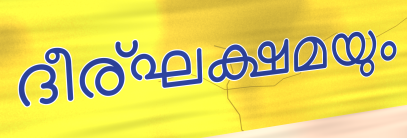
ദീര്ഘക്ഷമയും